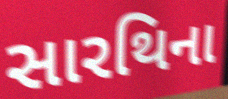
સારથિના